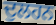
ਦੁਲਹਨ